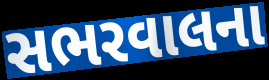
સભરવાલના